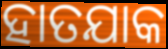
ହାତଯାକ